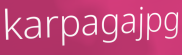
karpagajpg